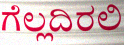
ಗೆಲ್ಲದಿರಲಿ